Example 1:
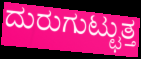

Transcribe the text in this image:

ದುರುಗುಟ್ಟುತ್ತ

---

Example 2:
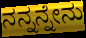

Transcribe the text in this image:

ನನ್ನನ್ನೇನು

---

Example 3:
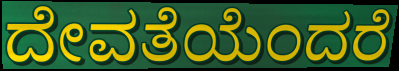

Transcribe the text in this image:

ದೇವತೆಯೆಂದರೆ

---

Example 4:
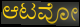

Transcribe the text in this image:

ಆಟವೋ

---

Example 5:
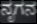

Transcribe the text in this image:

ನೃಗನ